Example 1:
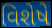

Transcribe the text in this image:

વિશેષે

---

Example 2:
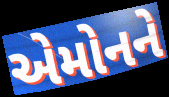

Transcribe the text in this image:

એમોનને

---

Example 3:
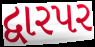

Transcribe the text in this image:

દ્વારપર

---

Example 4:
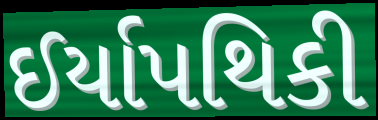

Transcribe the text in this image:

ઈર્યાપથિકી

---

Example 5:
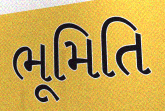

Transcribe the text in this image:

ભૂમિતિ